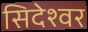
सिदेश्वर